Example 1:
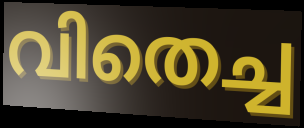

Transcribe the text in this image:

വിതെച്ച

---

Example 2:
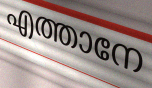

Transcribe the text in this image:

എത്താനേ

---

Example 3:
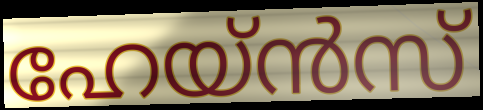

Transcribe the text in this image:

ഹേയ്ൻസ്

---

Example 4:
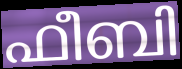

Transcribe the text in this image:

ഫീബി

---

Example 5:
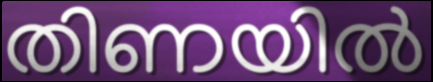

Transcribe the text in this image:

തിണയിൽ